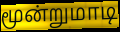
மூன்றுமாடி